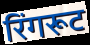
रिंगरूट